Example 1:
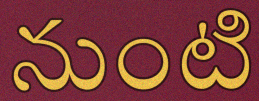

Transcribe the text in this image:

నుంటి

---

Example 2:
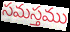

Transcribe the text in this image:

సమస్తము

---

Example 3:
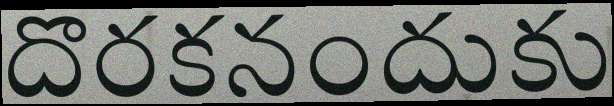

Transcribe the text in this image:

దొరకనందుకు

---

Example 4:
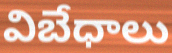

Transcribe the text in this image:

విబేధాలు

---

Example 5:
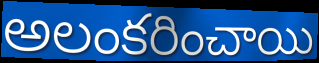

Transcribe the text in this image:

అలంకరించాయి